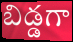
బిడ్డగా